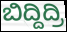
ಬಿದ್ದಿದ್ರಿ